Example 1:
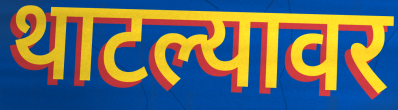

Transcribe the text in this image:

थाटल्यावर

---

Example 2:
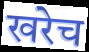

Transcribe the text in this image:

खरेच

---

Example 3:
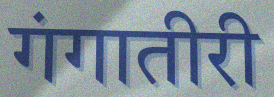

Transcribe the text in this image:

गंगातीरी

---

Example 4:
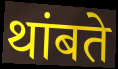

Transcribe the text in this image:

थांबते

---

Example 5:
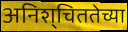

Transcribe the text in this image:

अनिश्चिततेच्या